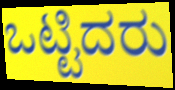
ಒಟ್ಟಿದರು